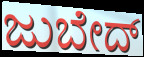
ಜುಬೇದ್